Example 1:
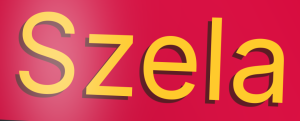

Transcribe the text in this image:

Szela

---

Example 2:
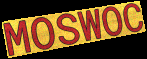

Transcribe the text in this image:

MOSWOC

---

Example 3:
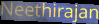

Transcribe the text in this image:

Neethirajan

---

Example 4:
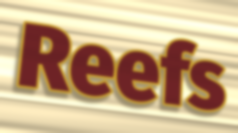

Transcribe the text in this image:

Reefs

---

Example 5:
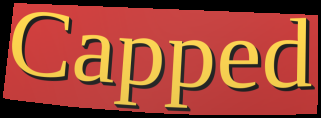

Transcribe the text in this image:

Capped